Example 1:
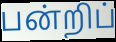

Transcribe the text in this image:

பன்றிப்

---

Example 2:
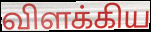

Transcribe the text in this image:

விளக்கிய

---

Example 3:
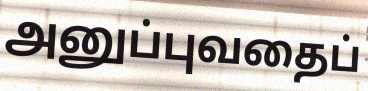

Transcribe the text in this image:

அனுப்புவதைப்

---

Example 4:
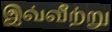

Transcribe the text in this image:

இவ்வீற்று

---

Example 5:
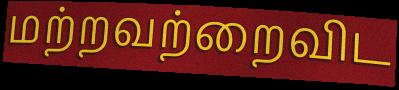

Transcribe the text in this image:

மற்றவற்றைவிட